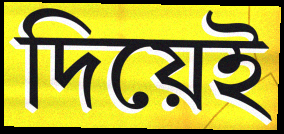
দিয়েই